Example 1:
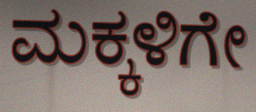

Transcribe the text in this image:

ಮಕ್ಕಳಿಗೇ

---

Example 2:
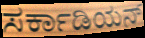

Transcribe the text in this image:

ಸರ್ಕಾಡಿಯನ್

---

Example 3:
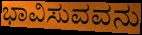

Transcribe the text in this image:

ಭಾವಿಸುವವನು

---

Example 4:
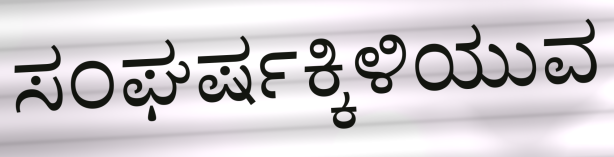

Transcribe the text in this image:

ಸಂಘರ್ಷಕ್ಕಿಳಿಯುವ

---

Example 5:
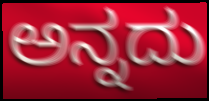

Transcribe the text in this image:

ಅನ್ನದು